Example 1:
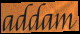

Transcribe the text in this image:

addam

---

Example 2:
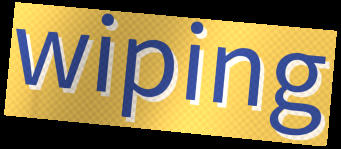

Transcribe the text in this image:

wiping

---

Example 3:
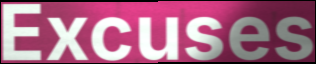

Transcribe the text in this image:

Excuses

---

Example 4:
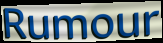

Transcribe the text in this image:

Rumour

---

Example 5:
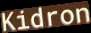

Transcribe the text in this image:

Kidron